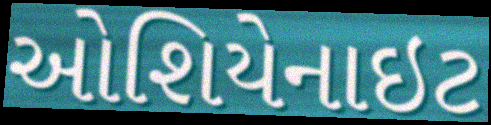
ઓશિયેનાઇટ